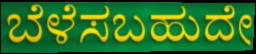
ಬೆಳೆಸಬಹುದೇ